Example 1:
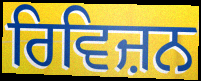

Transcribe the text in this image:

ਰਿਵਿਜ਼ਨ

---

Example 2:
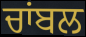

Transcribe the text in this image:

ਚਾਂਬਲ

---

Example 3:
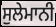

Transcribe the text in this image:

ਸੁਲੇਮਾਨੀ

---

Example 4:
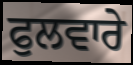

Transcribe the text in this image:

ਫੁਲਵਾਰੇ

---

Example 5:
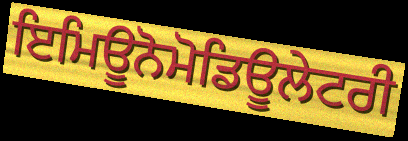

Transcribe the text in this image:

ਇਮਿਊਨੋਮੋਡਿਊਲੇਟਰੀ